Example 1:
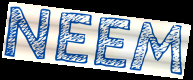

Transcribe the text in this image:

NEEM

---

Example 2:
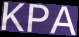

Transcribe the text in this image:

KPA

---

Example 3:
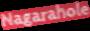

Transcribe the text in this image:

Nagarahole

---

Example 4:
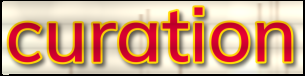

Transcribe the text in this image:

curation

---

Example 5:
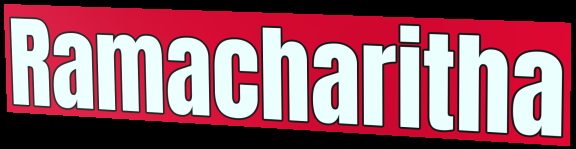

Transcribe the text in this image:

Ramacharitha